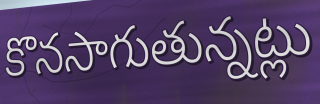
కొనసాగుతున్నట్లు